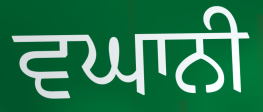
ਵਘਾਨੀ